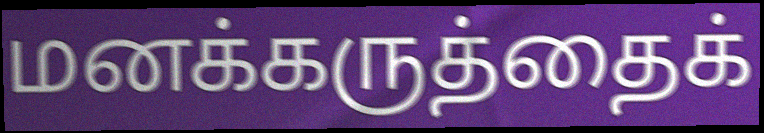
மனக்கருத்தைக்